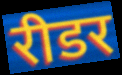
रीडर